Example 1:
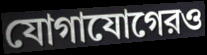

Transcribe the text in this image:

যোগাযোগেরও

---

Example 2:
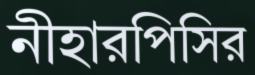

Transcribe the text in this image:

নীহারপিসির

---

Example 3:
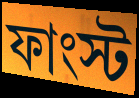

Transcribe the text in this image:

ফাংস্ট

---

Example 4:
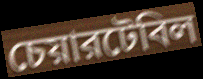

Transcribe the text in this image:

চেয়ারটেবিল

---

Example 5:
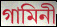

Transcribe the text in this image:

গামিনী